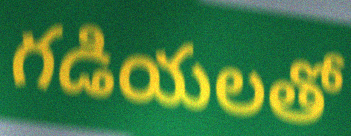
గడియలతో